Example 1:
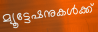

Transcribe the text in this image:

മ്യൂട്ടേഷനുകൾക്ക്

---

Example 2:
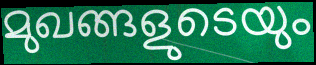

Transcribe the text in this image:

മുഖങ്ങളുടെയും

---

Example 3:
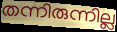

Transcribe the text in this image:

തന്നിരുന്നില്ല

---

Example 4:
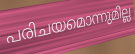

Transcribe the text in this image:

പരിചയമൊന്നുമില്ല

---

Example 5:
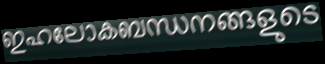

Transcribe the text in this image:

ഇഹലോകബന്ധനങ്ങളുടെ